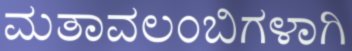
ಮತಾವಲಂಬಿಗಳಾಗಿ